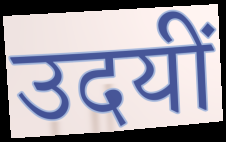
उदयीं